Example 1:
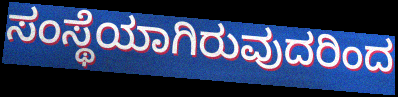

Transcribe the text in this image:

ಸಂಸ್ಥೆಯಾಗಿರುವುದರಿಂದ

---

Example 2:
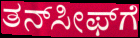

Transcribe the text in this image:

ತನ್‍ಸೀಫ್‍ಗೆ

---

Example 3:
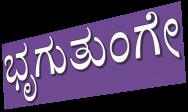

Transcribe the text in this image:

ಭೃಗುತುಂಗೇ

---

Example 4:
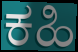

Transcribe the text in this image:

ಕಹಿ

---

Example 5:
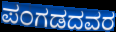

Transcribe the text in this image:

ಪಂಗಡದವರ